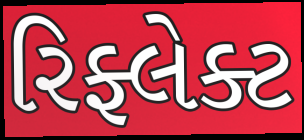
રિફ્લેક્ટ